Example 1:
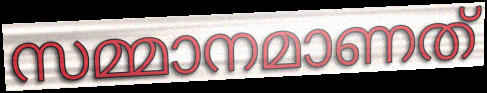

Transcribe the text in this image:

സമ്മാനമാണത്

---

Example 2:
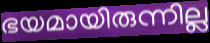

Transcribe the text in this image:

ഭയമായിരുന്നില്ല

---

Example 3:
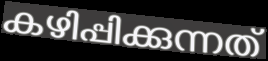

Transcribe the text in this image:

കഴിപ്പിക്കുന്നത്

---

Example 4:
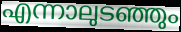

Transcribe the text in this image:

എന്നാലുടഞ്ഞും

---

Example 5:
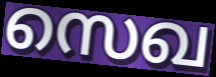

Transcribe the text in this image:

സെഖ